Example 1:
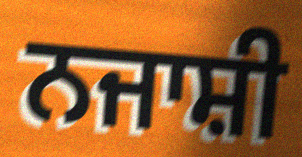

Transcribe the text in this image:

ਨਜਾਸ਼ੀ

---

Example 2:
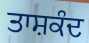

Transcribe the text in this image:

ਤਾਸ਼ਕੰਦ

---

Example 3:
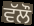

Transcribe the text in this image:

ਵੱਲੌ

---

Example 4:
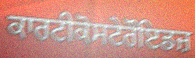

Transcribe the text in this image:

ਕਾਰਟੀਕੋਸਟੇਰੌਇਡਜ਼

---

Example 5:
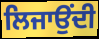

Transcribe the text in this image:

ਲਿਜਾਉਂਦੀ